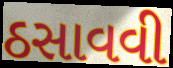
ઠસાવવી